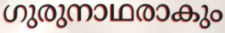
ഗുരുനാഥരാകും